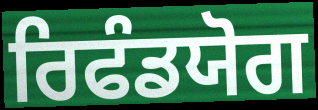
ਰਿਫੰਡਯੋਗ